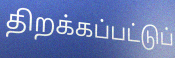
திறக்கப்பட்டுப்